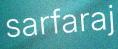
sarfaraj